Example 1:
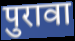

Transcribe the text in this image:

पुरावा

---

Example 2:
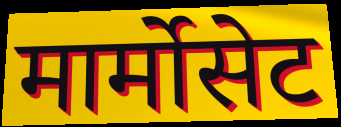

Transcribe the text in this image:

मार्मोसेट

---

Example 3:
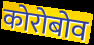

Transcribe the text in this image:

कोरोबोव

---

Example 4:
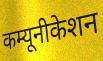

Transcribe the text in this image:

कम्यूनीकेशन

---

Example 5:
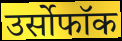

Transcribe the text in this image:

उर्सोफॉक